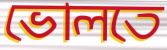
ভোলতে